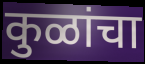
कुळांचा